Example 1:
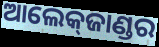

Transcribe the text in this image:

ଆଲେକ୍‌ଜାଣ୍ଡର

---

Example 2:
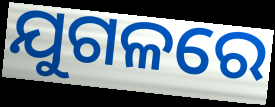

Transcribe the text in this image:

ଯୁଗଳରେ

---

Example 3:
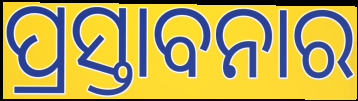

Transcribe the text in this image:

ପ୍ରସ୍ତାବନାର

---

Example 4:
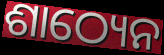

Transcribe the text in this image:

ଶାଠ୍ୟେନ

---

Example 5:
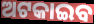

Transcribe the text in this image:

ଅଟକାଇବ